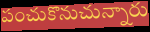
పంచుకొనుచున్నారు